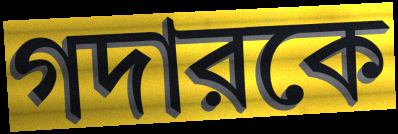
গদারকে